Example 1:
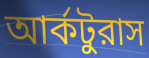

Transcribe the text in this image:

আর্কটুরাস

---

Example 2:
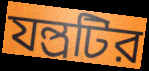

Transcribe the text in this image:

যন্ত্রটির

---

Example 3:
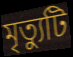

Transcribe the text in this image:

মৃত্যুটি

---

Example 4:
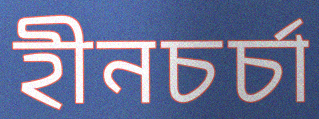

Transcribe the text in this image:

হীনচর্চা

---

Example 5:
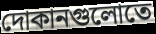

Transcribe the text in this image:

দোকানগুলোতে